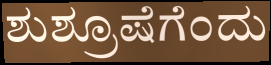
ಶುಶ್ರೂಷೆಗೆಂದು